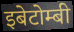
इबेटोम्बी